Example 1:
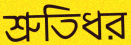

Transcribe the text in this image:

শ্রুতিধর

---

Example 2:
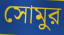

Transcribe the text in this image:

সোমুর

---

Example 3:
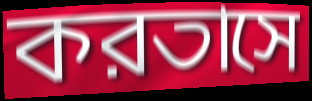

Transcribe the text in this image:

করতাসে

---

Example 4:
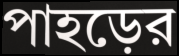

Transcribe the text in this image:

পাহড়ের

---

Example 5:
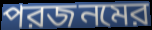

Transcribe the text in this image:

পরজনমের